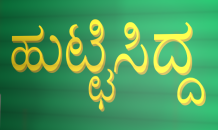
ಹುಟ್ಟಿಸಿದ್ದ